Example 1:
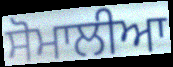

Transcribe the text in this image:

ਸੋਮਾਲੀਆ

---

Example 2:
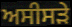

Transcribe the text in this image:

ਅਸੀਸੜੇ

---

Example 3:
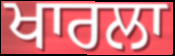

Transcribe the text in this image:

ਖਾਰਲਾ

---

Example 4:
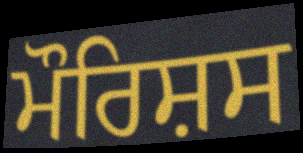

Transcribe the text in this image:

ਮੌਰਿਸ਼ਸ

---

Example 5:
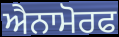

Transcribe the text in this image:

ਐਨਾਮੋਰਫ